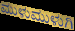
ಮುಳುಮುಳುಗಿ